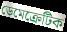
ডেমেক্রেটিক